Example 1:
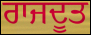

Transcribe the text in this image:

ਰਾਜਦੂਤ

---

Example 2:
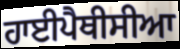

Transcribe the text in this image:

ਹਾਈਪੈਥੀਸੀਆ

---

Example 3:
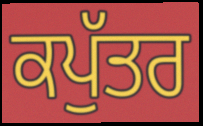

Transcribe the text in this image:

ਕਪੁੱਤਰ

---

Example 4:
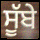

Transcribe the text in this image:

ਸੂੱਬੇ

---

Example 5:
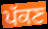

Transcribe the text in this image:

ਪੱਕਣ